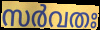
സർവതഃ